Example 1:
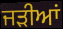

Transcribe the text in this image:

ਜੜੀਆਂ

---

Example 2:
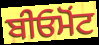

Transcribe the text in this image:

ਬੀਓਮੋਂਟ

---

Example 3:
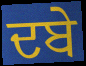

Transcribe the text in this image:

ਦਬੇ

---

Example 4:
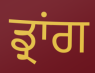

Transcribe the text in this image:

ਡ੍ਰਾਂਗ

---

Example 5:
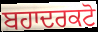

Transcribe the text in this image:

ਬਹਾਦਰਕਟੋ